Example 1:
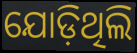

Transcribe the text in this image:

ଯୋଡ଼ିଥିଲି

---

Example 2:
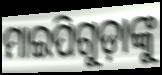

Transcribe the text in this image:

ମାଇପିଗୁଡ଼ାଙ୍କୁ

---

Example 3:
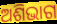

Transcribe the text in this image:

ଅଶିଭାଗ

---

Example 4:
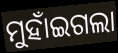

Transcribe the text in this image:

ମୁହାଁଇଗଲା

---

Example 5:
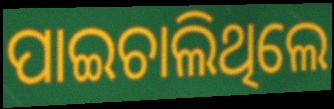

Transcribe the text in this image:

ପାଇଚାଲିଥିଲେ